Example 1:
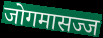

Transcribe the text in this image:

जोगमासज्ज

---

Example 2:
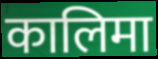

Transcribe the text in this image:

कालिमा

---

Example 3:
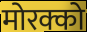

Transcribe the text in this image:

मोरक्को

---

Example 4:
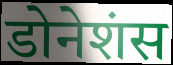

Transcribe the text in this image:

डोनेशंस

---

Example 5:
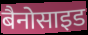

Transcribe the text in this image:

बैनोसाइड